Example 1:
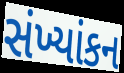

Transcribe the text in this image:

સંખ્યાંકન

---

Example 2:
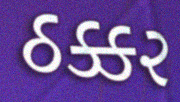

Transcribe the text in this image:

ઠક્કર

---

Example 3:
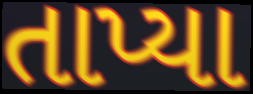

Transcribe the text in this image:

તાપ્યા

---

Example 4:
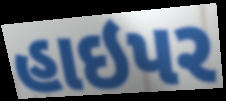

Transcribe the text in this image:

હાઇપર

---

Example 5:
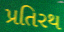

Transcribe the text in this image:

પ્રતિરથ